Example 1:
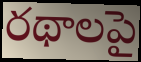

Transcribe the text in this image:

రథాలపై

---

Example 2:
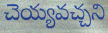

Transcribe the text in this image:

చెయ్యవచ్చని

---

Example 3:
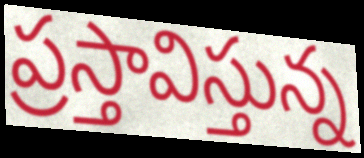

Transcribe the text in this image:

ప్రస్తావిస్తున్న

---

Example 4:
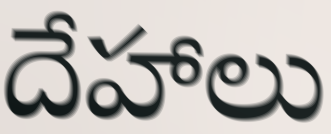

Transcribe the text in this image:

దేహాలు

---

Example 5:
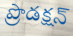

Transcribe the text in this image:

ప్రొడక్షన్